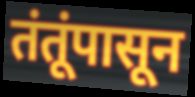
तंतूंपासून